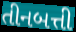
તીનબત્તી